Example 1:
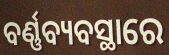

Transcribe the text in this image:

ବର୍ଣ୍ଣବ୍ୟବସ୍ଥାରେ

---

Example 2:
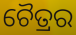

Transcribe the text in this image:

ଚୈତ୍ରର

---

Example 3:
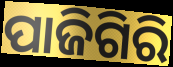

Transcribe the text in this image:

ପାଜିଗିରି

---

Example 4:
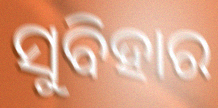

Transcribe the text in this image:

ସୁବିହାର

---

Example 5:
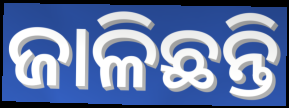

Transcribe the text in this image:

ଜାଳିଛନ୍ତି